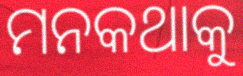
ମନକଥାକୁ